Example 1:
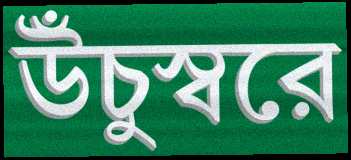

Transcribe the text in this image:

উঁচুস্বরে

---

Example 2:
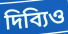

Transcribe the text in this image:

দিব্যিও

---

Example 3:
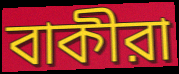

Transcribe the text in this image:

বাকীরা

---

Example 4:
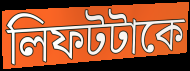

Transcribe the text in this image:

লিফটটাকে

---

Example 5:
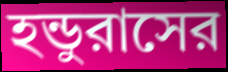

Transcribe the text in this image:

হন্ডুরাসের